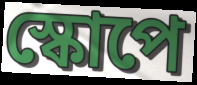
স্কোপে